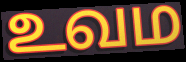
உவம